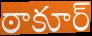
ఠాకూర్